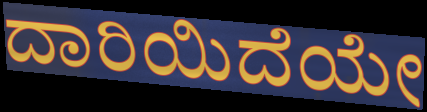
ದಾರಿಯಿದೆಯೇ